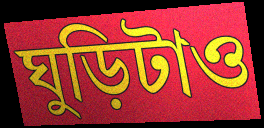
ঘুড়িটাও